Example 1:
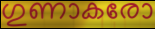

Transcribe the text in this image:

ഗുണാകരോ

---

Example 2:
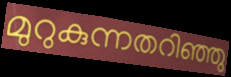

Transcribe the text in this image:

മുറുകുന്നതറിഞ്ഞു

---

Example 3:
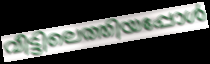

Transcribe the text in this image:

വീട്ടിലെത്തിയപ്പോൾ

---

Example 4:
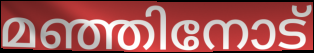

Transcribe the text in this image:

മഞ്ഞിനോട്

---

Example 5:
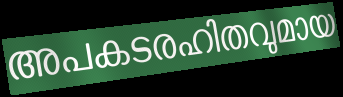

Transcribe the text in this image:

അപകടരഹിതവുമായ